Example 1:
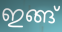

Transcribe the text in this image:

ഇങ്ങ്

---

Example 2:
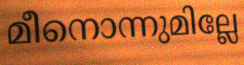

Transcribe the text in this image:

മീനൊന്നുമില്ലേ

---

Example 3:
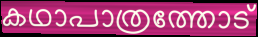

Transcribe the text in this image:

കഥാപാത്രത്തോട്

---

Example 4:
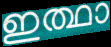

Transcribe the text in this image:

ഇത്ഥാ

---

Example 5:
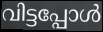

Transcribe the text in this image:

വിട്ടപ്പോൾ